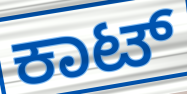
ಕಾಟ್